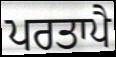
ਪਰਤਾਪੈ